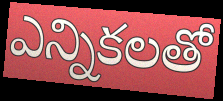
ఎన్నికలతో